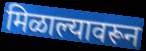
मिळाल्यावरून